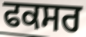
ਫਕਸਰ